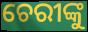
ଚେରୀଙ୍କୁ